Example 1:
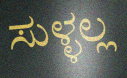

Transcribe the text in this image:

ಸುಳ್ಳಲ್ಲ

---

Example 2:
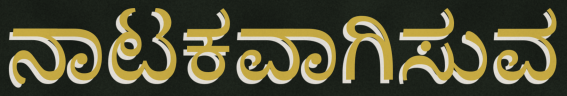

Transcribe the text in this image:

ನಾಟಕವಾಗಿಸುವ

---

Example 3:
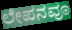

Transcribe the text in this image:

ಲೇಪನವೂ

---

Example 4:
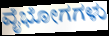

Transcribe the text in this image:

ವೈಭೋಗಗಳು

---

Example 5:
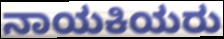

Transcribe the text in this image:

ನಾಯಕಿಯರು